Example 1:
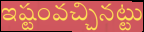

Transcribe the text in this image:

ఇష్టంవచ్చినట్టు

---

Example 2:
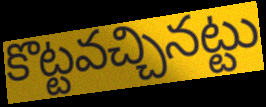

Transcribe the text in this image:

కొట్టవచ్చినట్టు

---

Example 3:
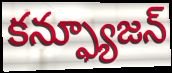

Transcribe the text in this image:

కన్ఫ్యూజన్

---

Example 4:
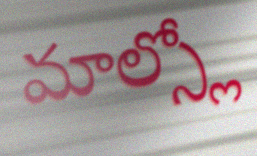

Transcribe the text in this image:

మాల్స్లో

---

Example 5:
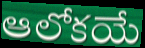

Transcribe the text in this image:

ఆలోకయే